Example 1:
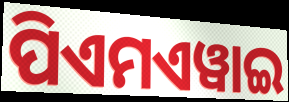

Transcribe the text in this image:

ପିଏମଏୱାଇ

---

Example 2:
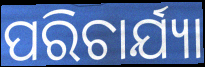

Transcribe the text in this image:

ପରିଚାର୍ଯ୍ୟା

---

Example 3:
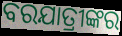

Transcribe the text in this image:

ବରଯାତ୍ରୀଙ୍କର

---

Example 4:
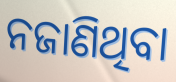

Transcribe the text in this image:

ନଜାଣିଥିବା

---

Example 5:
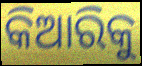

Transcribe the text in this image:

କିଆରିକୁ